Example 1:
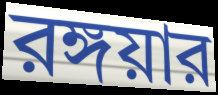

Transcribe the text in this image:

রঙ্গয়ার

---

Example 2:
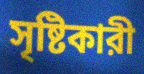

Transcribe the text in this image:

সৃষ্টিকারী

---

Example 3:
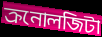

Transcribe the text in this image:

ক্রনোলজিটা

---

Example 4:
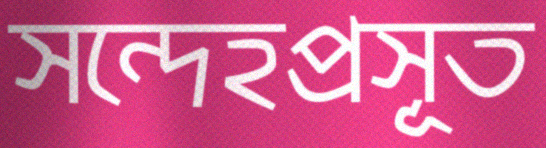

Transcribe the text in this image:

সন্দেহপ্রসূত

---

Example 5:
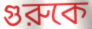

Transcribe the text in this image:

গুরুকে